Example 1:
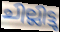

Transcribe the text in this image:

ചില്ലിട്ടു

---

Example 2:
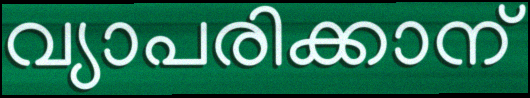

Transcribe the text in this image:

വ്യാപരിക്കാന്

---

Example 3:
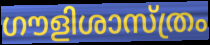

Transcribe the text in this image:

ഗൗളിശാസ്ത്രം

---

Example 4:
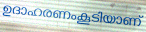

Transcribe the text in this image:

ഉദാഹരണംകൂടിയാണ്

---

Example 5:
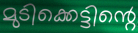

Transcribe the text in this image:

മുടിക്കെട്ടിന്റെ